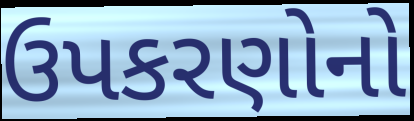
ઉપકરણોનો